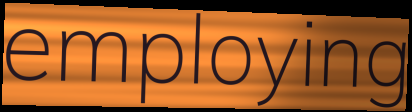
employing